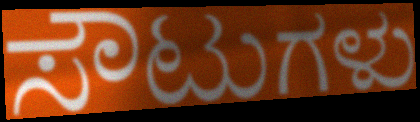
ಸೌಟುಗಳು